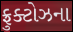
ફ્રુક્ટોઝના